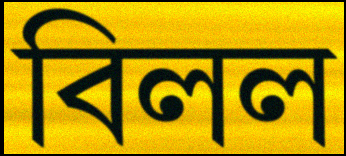
বিলল